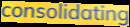
consolidating